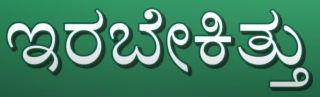
ಇರಬೇಕಿತ್ತು